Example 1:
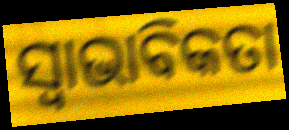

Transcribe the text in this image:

ସ୍ଵାଭାବିକତା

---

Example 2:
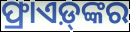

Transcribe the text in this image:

ଫ୍ରାଏଡ଼୍‍ଙ୍କର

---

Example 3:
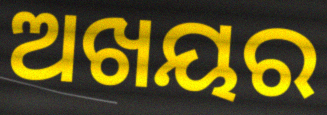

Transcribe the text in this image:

ଅଖୟର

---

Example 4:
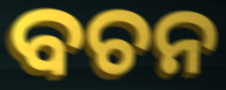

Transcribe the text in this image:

ବଚନ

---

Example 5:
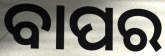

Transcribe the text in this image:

ବାପର